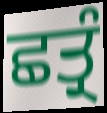
ਛਤ੍ਰੰ